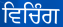
ਵਿਚਿੰਗ